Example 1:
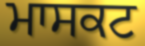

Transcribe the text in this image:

ਮਾਸਕਟ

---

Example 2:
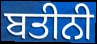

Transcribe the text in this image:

ਬਤੀਨੀ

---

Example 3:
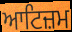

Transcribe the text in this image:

ਆਟਿਜ਼ਮ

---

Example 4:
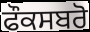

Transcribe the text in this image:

ਫੌਕਸਬਰੋ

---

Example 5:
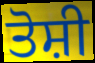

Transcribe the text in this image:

ਤੋਸ਼ੀ